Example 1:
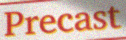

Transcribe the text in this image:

Precast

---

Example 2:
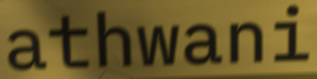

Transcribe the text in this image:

athwani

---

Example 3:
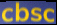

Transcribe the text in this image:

cbsc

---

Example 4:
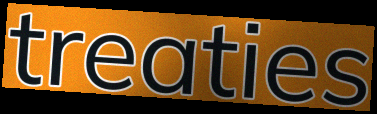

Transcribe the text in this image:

treaties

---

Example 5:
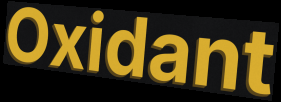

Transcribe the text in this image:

Oxidant